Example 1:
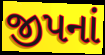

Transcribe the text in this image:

જીપનાં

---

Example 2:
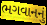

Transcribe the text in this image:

ભગવાનનું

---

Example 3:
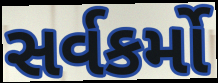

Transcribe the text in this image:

સર્વકર્મો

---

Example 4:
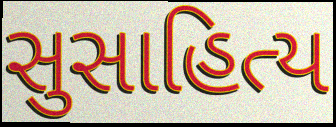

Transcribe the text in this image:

સુસાહિત્ય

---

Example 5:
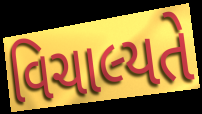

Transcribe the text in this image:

વિચાલ્યતે